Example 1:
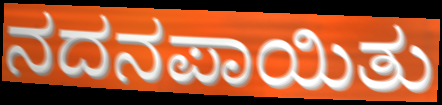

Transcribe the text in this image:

ನದನಪಾಯಿತು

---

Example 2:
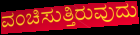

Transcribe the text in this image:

ವಂಚಿಸುತ್ತಿರುವುದು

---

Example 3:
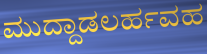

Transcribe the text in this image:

ಮುದ್ದಾಡಲರ್ಹವಹ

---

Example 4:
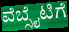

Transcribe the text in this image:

ವೆಬ್ಸೈಟಿಗೆ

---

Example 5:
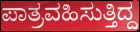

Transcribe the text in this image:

ಪಾತ್ರವಹಿಸುತ್ತಿದ್ದ